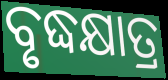
ବୃଦ୍ଧକ୍ଷାତ୍ର